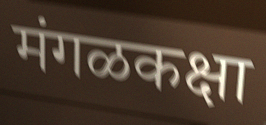
मंगळकक्षा